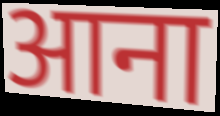
आना